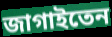
জাগাইতেন